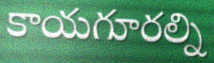
కాయగూరల్ని